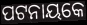
ପଟନାୟକେ